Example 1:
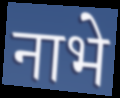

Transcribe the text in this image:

नाभे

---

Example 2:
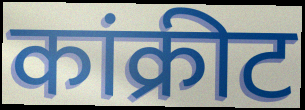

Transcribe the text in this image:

कांक्रीट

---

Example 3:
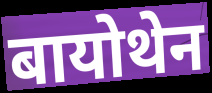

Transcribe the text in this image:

बायोथेन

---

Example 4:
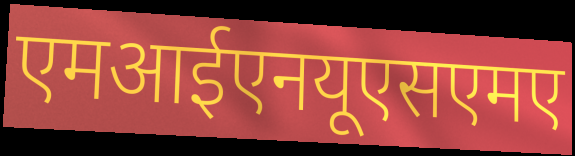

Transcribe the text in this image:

एमआईएनयूएसएमए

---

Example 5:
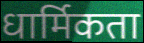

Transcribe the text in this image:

धार्मिकता